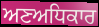
ਅਣਅਧਿਕਾਰ